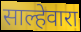
साल्हेवारा